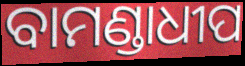
ବାମଣ୍ଡାଧୀପ